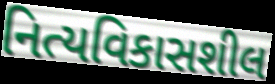
નિત્યવિકાસશીલ